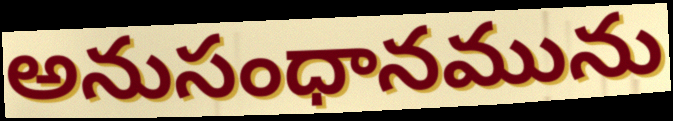
అనుసంధానమును